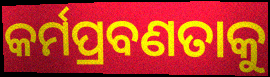
କର୍ମପ୍ରବଣତାକୁ